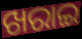
ଖରାଇ